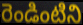
రెండింటిని